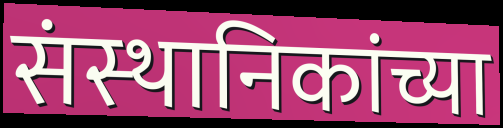
संस्थानिकांच्या